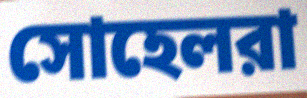
সোহেলরা